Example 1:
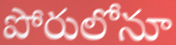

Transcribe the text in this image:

పోరులోనూ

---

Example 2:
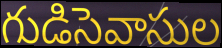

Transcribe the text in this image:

గుడిసెవాసుల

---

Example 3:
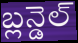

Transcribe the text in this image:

బ్లన్డెల్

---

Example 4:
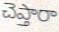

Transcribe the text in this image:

చెప్తారా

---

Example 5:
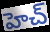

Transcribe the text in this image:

హెచ్